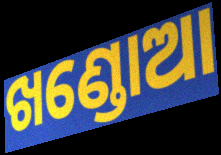
ଖଣ୍ଡୋଆ